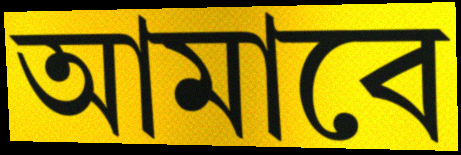
আমাবে